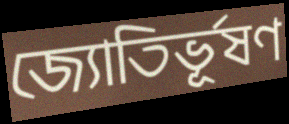
জ্যোতির্ভূষণ